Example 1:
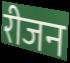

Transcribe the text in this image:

रीजन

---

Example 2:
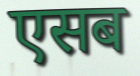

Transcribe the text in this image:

एसब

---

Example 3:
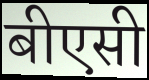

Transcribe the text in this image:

बीएसी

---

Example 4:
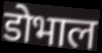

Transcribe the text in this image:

डोभाल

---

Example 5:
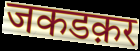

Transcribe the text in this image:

जकडक़र